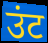
उंट